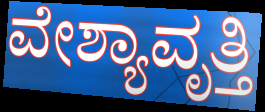
ವೇಶ್ಯಾವೃತ್ತಿ